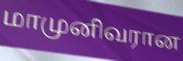
மாமுனிவரான